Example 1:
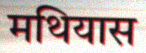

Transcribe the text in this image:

मथियास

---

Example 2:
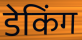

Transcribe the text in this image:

डेकिंग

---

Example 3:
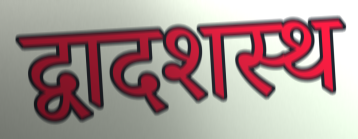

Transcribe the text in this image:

द्वादशस्थ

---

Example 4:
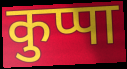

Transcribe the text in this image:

कुप्पा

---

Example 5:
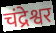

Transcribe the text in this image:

चंद्रेश्वर